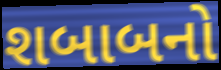
શબાબનો